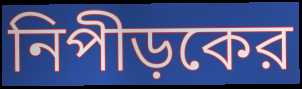
নিপীড়কের